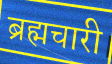
ब्रह्मचारी